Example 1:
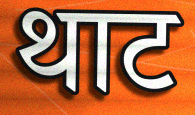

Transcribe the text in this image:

थाट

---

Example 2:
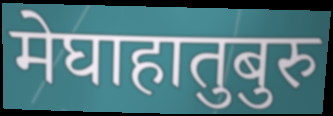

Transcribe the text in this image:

मेघाहातुबुरु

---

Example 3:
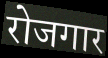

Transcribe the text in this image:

रोजगार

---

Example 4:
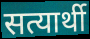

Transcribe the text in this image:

सत्यार्थी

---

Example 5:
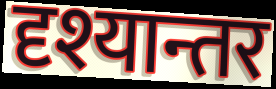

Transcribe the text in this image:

दृश्यान्तर